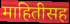
माहितीसह